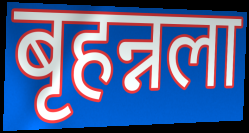
बृहन्नला